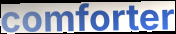
comforter